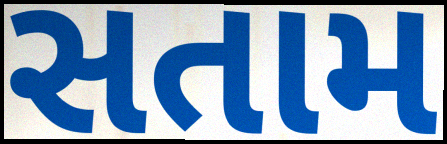
સતામ